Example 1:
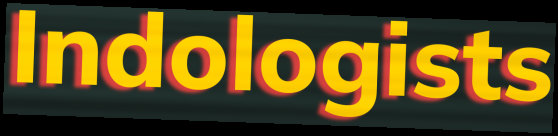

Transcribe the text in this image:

Indologists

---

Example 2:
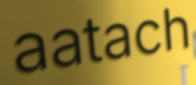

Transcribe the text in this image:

aatach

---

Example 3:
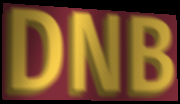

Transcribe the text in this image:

DNB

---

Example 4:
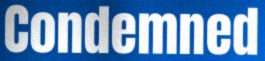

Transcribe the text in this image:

Condemned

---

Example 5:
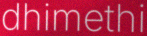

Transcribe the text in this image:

dhimethi